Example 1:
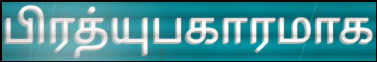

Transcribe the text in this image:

பிரத்யுபகாரமாக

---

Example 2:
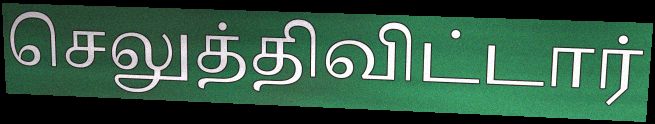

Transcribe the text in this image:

செலுத்திவிட்டார்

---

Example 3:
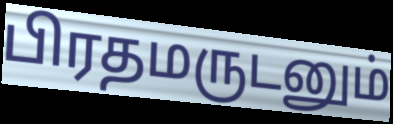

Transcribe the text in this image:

பிரதமருடனும்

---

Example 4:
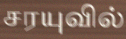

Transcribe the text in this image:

சரயுவில்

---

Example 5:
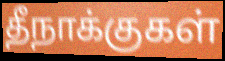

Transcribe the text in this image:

தீநாக்குகள்